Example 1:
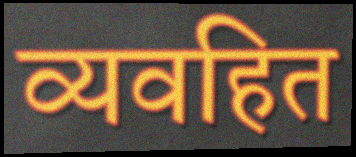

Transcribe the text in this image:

व्यवहित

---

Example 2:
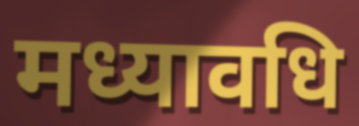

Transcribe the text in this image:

मध्यावधि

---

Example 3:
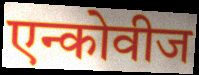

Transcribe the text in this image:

एन्कोवीज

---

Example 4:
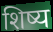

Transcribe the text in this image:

शिष्य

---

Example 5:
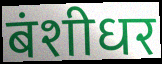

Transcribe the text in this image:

बंशीधर